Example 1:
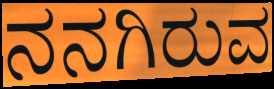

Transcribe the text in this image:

ನನಗಿರುವ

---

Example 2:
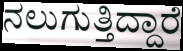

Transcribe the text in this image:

ನಲುಗುತ್ತಿದ್ದಾರೆ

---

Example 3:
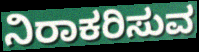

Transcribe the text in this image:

ನಿರಾಕರಿಸುವ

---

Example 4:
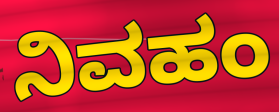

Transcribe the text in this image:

ನಿವಹಂ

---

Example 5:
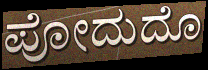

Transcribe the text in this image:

ಪೋದುದೊ